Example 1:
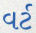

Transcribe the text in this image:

વર્ટ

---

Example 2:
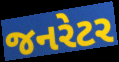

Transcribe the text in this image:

જનરેટર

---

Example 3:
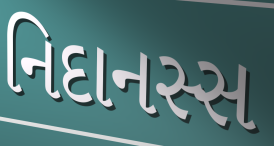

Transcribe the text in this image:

નિદાનસ્સ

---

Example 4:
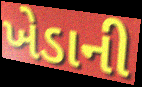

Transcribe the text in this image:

ખેડાની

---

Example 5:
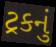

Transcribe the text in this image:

ટ્રકનું